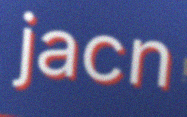
jacn